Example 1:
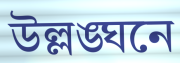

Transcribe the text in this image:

উল্লঙ্ঘনে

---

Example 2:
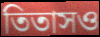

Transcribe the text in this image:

তিতাসও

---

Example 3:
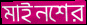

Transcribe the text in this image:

মাইনশের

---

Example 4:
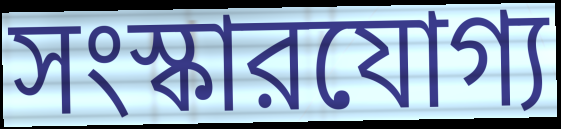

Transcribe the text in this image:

সংস্কারযোগ্য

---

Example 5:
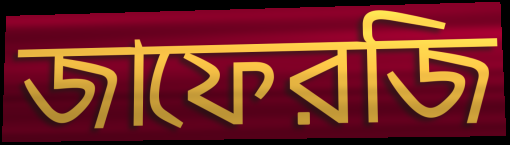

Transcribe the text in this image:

জাফেরজি